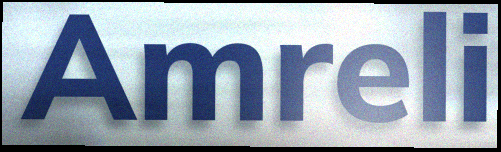
Amreli